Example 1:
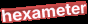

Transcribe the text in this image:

hexameter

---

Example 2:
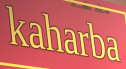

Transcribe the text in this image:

kaharba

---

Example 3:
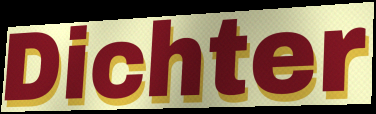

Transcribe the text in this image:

Dichter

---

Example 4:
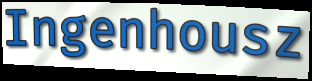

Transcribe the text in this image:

Ingenhousz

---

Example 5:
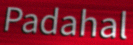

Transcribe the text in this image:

Padahal